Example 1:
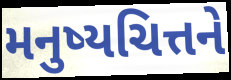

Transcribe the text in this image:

મનુષ્યચિત્તને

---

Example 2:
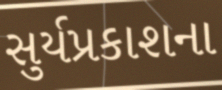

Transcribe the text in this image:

સુર્યપ્રકાશના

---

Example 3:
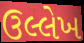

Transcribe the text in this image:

ઉલ્લેખ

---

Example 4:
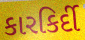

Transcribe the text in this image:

કારકિર્દી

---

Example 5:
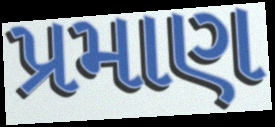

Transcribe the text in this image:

પ્રમાણ